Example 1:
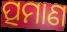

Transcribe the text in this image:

ତ୍ପମାଣ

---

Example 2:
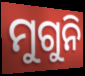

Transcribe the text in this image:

ମୁଗୁନି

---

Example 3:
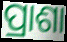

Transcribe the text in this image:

ପ୍ରାଶା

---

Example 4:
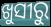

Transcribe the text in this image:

ଖୁସୀରୁ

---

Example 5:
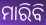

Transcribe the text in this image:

ମାରିବି